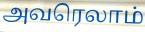
அவரெலாம்